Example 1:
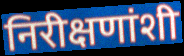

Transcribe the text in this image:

निरीक्षणांशी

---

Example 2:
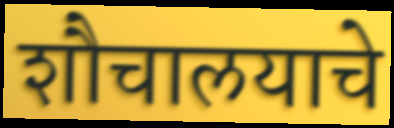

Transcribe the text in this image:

शौचालयाचे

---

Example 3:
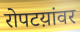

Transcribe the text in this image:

रोपटय़ांवर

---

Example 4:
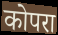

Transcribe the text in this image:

कोपरा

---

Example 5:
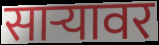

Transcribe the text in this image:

साऱ्यावर